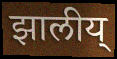
झालीय्